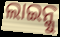
ଲାଇନ୍କୁ